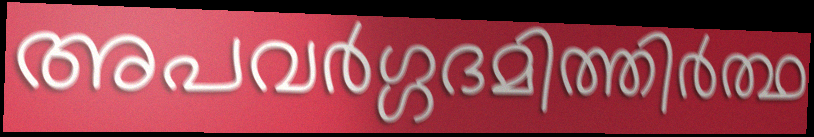
അപവർഗ്ഗദമിത്തിർത്ഥ